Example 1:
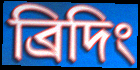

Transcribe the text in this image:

ব্রিদিং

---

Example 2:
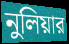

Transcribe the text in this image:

নুলিয়ার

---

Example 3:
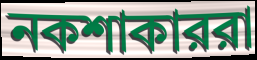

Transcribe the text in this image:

নকশাকাররা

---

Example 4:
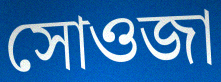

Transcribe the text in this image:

সোওজা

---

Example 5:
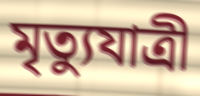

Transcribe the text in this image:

মৃত্যুযাত্রী